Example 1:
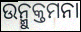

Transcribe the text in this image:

ଉନ୍ମୁକ୍ତମନା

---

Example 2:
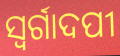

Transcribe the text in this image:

ସ୍ବର୍ଗାଦପୀ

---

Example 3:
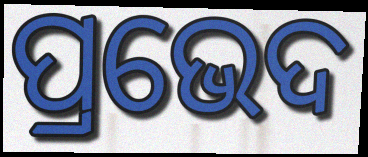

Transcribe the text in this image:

ପ୍ରଭେଦ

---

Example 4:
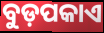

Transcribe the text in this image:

ବୁଡ଼ପକାଏ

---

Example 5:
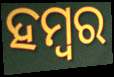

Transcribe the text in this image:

ହମ୍ବର